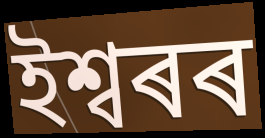
ইশ্বৰৰ